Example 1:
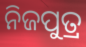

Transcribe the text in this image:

ନିଜପୁତ୍ର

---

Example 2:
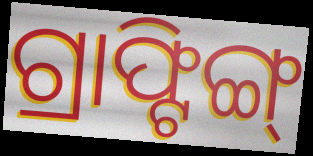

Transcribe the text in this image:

ଗ୍ରାଫ୍ଟିଙ୍ଗ୍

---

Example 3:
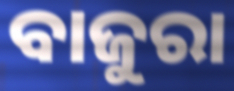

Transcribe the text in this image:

ବାଜୁରା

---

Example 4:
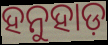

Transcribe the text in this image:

ହନୁହାଡ଼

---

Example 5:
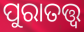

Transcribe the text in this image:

ପୁରାତତ୍ତ୍ୱ